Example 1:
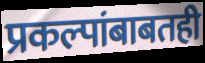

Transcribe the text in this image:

प्रकल्पांबाबतही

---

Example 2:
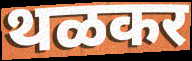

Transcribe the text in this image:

थळकर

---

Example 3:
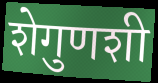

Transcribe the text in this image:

शेगुणशी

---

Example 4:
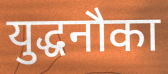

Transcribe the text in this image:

युद्धनौका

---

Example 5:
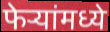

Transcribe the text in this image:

फेऱ्यांमध्ये